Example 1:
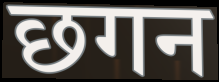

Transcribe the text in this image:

छगन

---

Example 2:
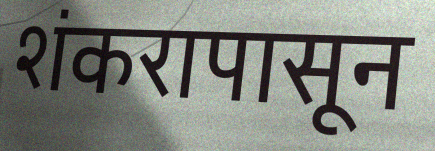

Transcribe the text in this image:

शंकरापासून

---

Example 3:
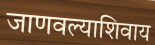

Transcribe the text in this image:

जाणवल्याशिवाय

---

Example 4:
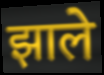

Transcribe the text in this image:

झाले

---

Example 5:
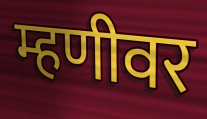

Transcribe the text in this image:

म्हणीवर